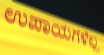
ಉಪಾಯಗಳಿಲ್ಲ